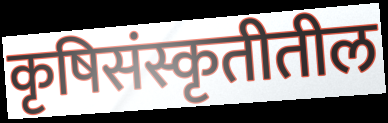
कृषिसंस्कृतीतील